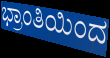
ಭ್ರಾಂತಿಯಿಂದ